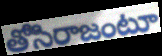
తోసిరాజంటూ